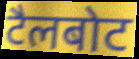
टैलबोट